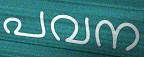
പവന